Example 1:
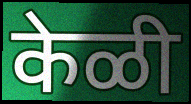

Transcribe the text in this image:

केळी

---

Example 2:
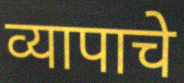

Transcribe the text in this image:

व्यापाचे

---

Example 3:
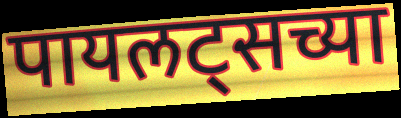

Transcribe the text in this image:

पायलट्सच्या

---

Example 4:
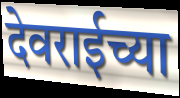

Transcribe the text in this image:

देवराईच्या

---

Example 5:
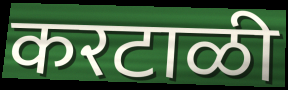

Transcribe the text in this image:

करटाळी